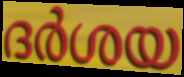
ദർശയ